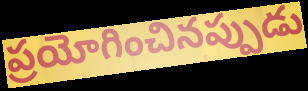
ప్రయోగించినప్పుడు